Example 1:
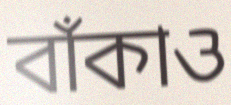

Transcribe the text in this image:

বাঁকাও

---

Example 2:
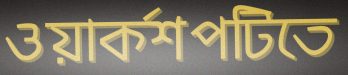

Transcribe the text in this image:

ওয়ার্কশপটিতে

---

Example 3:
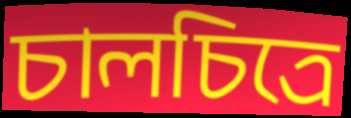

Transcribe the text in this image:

চালচিত্রে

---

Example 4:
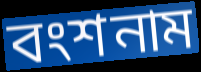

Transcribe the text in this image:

বংশনাম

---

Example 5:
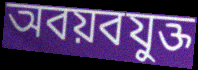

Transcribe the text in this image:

অবয়বযুক্ত